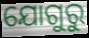
ଯୋଗୁରୁ